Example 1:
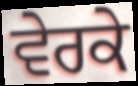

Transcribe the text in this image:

ਵੇਰਕੇ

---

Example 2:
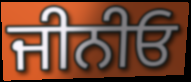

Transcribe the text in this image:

ਜੀਨੀਓ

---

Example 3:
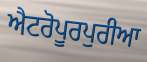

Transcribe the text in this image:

ਐਟਰੋਪੂਰਪੁਰੀਆ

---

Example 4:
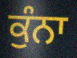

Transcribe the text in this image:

ਕੁੰਨਾ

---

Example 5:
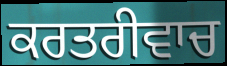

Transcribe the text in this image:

ਕਰਤਰੀਵਾਚ